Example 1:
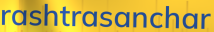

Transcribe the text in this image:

rashtrasanchar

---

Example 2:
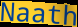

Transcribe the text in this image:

Naath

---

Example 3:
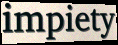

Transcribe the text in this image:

impiety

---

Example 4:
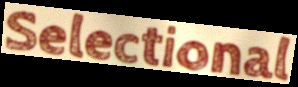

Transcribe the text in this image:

Selectional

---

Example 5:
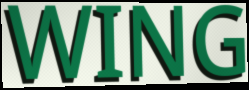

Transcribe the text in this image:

WING